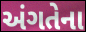
અંગતેના